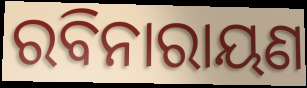
ରବିନାରାୟଣ